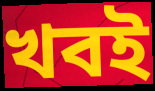
খবই